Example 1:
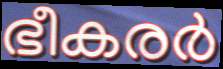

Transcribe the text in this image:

ഭീകരർ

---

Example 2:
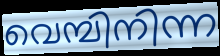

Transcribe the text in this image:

വെമ്പിനിന്ന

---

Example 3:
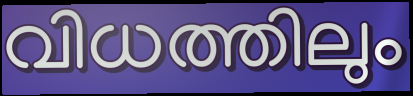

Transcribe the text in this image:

വിധത്തിലും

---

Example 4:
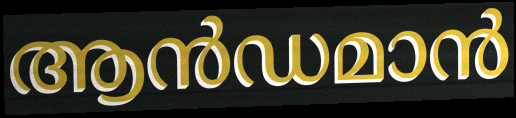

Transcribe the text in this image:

ആൻഡമാൻ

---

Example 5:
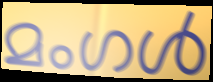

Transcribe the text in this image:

മംഗൾ